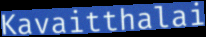
Kavaitthalai